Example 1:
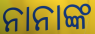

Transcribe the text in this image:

ନାନାଙ୍କ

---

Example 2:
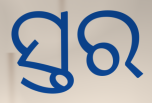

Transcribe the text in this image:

ସ୍ତର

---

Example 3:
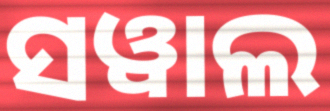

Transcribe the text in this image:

ସୱାଲ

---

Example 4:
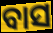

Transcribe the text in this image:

ବାସ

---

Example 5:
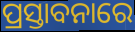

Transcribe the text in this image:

ପ୍ରସ୍ତାବନାରେ